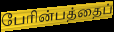
பேரின்பத்தைப்